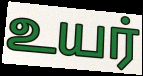
உயர்